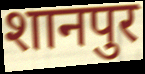
शानपुर